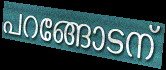
പറങ്ങോടന്